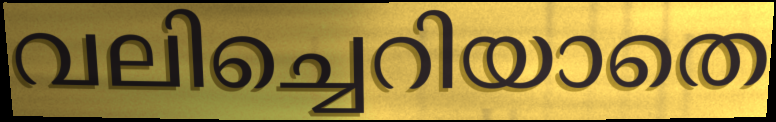
വലിച്ചെറിയാതെ